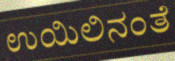
ಉಯಿಲಿನಂತೆ